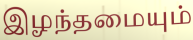
இழந்தமையும்